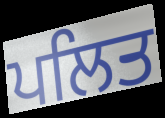
ਪਲਿਤ